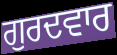
ਗੁਰਦਵਾਰ